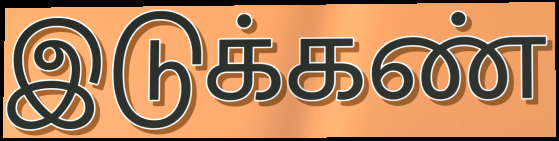
இடுக்கண்